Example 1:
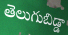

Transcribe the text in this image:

తెలుగుబిడ్డా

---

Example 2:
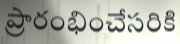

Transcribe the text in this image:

ప్రారంభించేసరికి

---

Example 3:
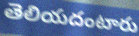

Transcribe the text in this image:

తెలియదంటారు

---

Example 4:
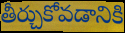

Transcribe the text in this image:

తీర్చుకోవడానికి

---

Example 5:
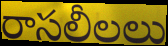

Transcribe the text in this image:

రాసలీలలు